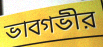
ভাবগভীর